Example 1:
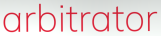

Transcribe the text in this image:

arbitrator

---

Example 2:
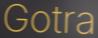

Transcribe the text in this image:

Gotra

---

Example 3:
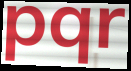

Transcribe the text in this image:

pqr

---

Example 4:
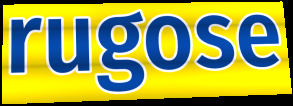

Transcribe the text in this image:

rugose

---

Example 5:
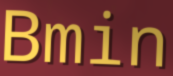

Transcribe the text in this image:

Bmin